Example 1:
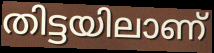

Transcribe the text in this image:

തിട്ടയിലാണ്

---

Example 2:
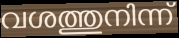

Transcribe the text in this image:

വശത്തുനിന്ന്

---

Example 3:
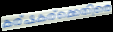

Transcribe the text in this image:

കര്ഷകര്ക്കെതിരെ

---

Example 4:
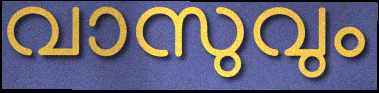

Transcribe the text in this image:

വാസുവും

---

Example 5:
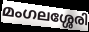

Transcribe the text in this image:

മംഗലശ്ശേരി